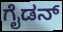
ಗೈಡನ್